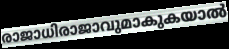
രാജാധിരാജാവുമാകുകയാൽ